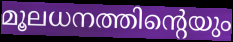
മൂലധനത്തിന്റെയും